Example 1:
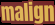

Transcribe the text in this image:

malign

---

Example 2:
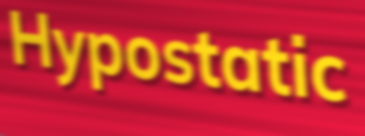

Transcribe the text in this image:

Hypostatic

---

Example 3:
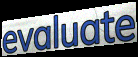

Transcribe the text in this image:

evaluate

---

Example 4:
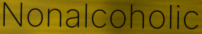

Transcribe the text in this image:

Nonalcoholic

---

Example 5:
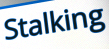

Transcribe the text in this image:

Stalking